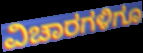
ವಿಚಾರಗಳಿಗೂ